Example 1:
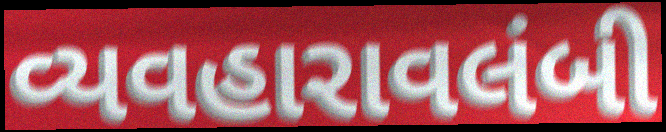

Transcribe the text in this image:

વ્યવહારાવલંબી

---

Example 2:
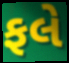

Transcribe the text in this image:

ફલે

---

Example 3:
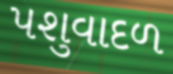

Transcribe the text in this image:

પશુવાદળ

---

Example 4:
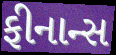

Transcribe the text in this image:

ફીનાન્સ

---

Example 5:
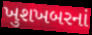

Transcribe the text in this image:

ખુશખબરનાં